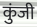
कुंजी